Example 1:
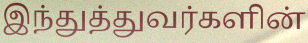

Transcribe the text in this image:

இந்துத்துவர்களின்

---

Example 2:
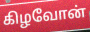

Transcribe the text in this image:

கிழவோன்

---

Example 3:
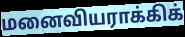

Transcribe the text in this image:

மனைவியராக்கிக்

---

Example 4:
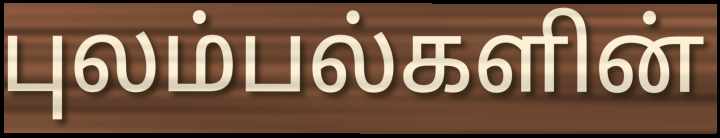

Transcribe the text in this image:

புலம்பல்களின்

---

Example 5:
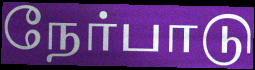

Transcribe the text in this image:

நேர்பாடு